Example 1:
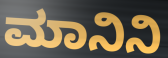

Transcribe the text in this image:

ಮಾನಿನಿ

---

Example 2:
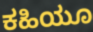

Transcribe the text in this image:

ಕಹಿಯೂ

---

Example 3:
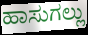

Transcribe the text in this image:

ಹಾಸುಗಲ್ಲು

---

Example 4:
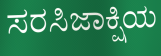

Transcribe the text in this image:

ಸರಸಿಜಾಕ್ಷಿಯ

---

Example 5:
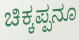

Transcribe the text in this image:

ಚಿಕ್ಕಪ್ಪನೂ